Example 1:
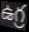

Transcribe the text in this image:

ఉగ్ర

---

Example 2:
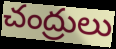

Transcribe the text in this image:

చంద్రులు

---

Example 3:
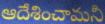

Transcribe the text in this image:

ఆదేశించామనీ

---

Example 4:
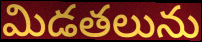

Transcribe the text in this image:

మిడతలును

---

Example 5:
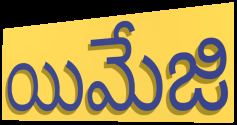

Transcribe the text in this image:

యిమేజి